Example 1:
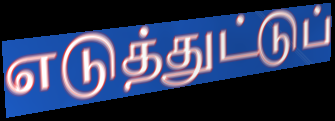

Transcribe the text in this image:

எடுத்துட்டுப்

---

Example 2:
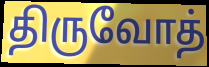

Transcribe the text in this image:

திருவோத்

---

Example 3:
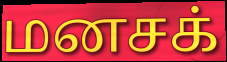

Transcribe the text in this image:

மனசக்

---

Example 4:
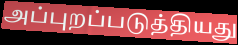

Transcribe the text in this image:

அப்புறப்படுத்தியது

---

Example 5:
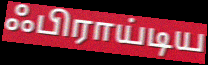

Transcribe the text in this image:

ஃபிராய்டிய